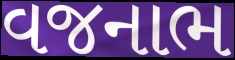
વજનાભ